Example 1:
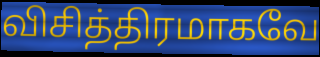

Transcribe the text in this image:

விசித்திரமாகவே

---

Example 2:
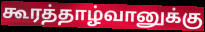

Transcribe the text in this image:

கூரத்தாழ்வானுக்கு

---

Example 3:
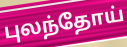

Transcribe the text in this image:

புலந்தோய்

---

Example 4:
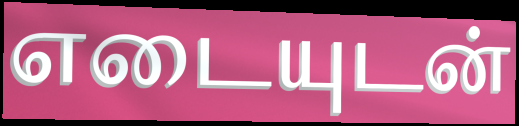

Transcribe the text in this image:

எடையுடன்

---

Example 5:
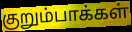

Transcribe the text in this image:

குறும்பாக்கள்